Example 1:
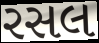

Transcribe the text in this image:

રસલ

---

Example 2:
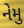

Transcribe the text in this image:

નેમુ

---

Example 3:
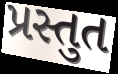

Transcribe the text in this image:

પ્રસ્તુત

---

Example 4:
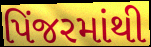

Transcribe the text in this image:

પિંજરમાંથી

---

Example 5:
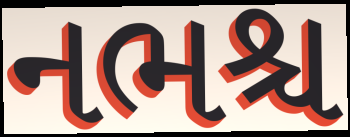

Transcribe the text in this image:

નભશ્ચ